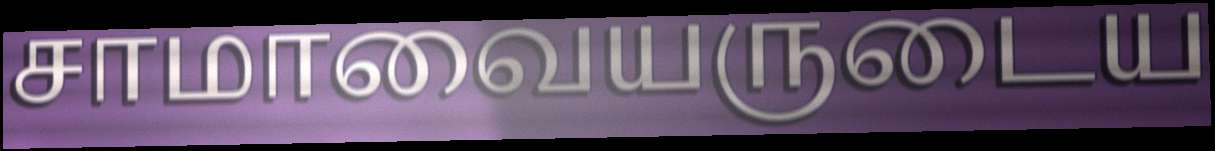
சாமாவையருடைய